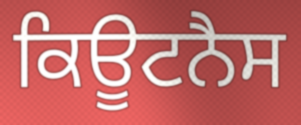
ਕਿਊਟਨੈਸ